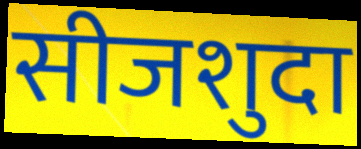
सीजशुदा